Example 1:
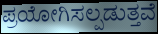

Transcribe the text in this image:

ಪ್ರಯೋಗಿಸಲ್ಪಡುತ್ತವೆ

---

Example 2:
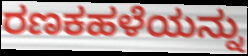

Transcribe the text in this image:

ರಣಕಹಳೆಯನ್ನು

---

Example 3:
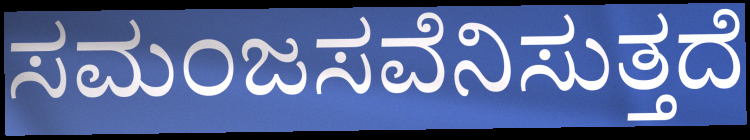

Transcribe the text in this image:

ಸಮಂಜಸವೆನಿಸುತ್ತದೆ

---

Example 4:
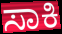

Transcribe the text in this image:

ಸಾಕಿ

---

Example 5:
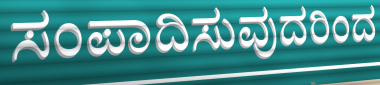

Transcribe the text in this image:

ಸಂಪಾದಿಸುವುದರಿಂದ